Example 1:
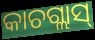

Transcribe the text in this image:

କାଚଗ୍ଲାସ୍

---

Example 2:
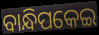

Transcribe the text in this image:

ବାନ୍ଧିପକେଇ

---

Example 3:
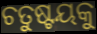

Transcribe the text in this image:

ଚତୁଷ୍ଟୟକୁ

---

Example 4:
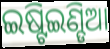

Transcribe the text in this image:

ଇଷ୍ଟିଇଣ୍ଡିଆ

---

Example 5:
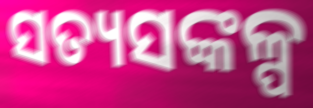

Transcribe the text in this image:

ସତ୍ୟସଙ୍କଳ୍ପ